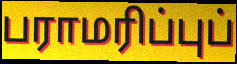
பராமரிப்புப்